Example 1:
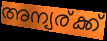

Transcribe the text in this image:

അന്യര്ക്ക്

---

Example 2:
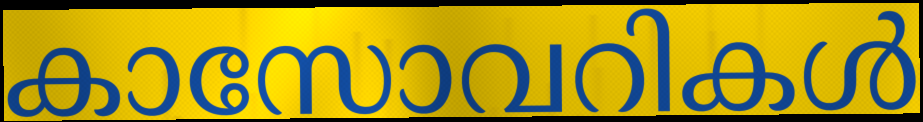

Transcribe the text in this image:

കാസോവറികൾ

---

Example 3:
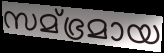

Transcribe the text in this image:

സമ്ഭ്രമായ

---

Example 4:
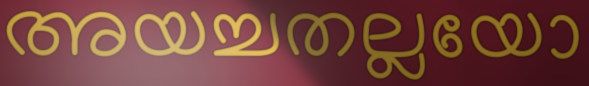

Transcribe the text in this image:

അയച്ചതല്ലയോ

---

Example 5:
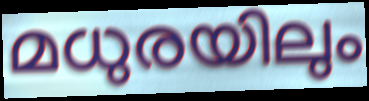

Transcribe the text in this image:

മധുരയിലും